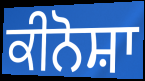
ਕੀਨੋਸ਼ਾ